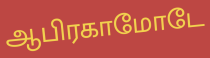
ஆபிரகாமோடே